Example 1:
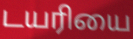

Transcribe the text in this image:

டயரியை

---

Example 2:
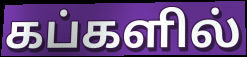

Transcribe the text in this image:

கப்களில்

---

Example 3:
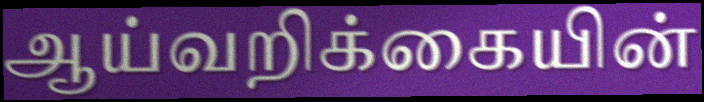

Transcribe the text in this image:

ஆய்வறிக்கையின்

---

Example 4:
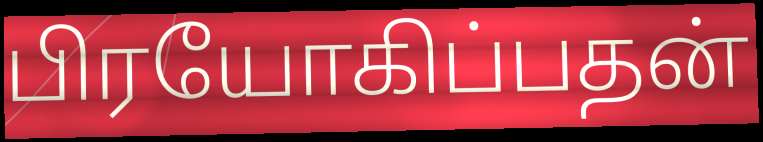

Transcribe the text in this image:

பிரயோகிப்பதன்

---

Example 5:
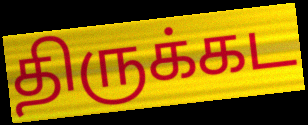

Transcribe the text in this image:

திருக்கட